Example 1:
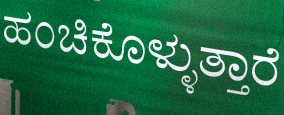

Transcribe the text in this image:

ಹಂಚಿಕೊಳ್ಳುತ್ತಾರೆ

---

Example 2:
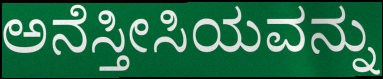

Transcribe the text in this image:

ಅನೆಸ್ತೀಸಿಯವನ್ನು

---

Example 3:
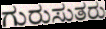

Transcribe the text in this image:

ಗುರುಸುತರು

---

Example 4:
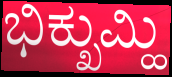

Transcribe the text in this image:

ಭಿಕ್ಖುಮ್ಹಿ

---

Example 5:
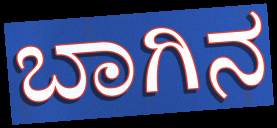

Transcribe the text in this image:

ಬಾಗಿನ